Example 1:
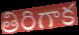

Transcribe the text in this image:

తిరిగాక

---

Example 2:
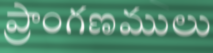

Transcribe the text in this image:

ప్రాంగణములు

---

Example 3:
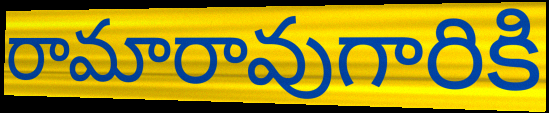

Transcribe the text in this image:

రామారావుగారికి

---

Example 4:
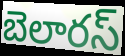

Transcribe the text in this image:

బెలారస్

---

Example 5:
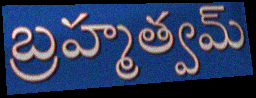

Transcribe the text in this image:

బ్రహ్మత్వమ్